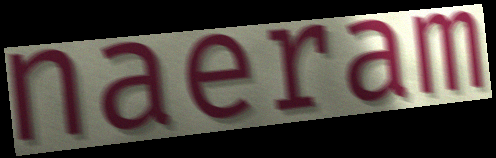
naeram